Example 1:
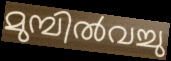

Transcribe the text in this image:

മുമ്പിൽവച്ചു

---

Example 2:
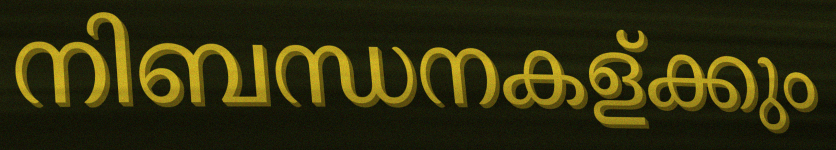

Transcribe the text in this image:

നിബന്ധനകള്ക്കും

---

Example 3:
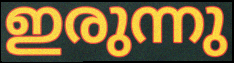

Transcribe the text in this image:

ഇരുന്നു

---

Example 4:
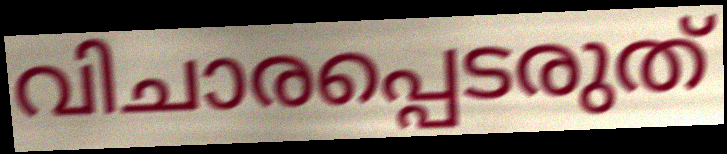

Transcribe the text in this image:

വിചാരപ്പെടരുത്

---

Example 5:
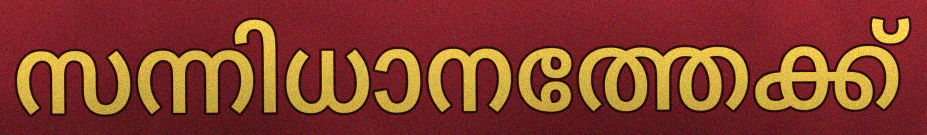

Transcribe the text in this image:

സന്നിധാനത്തേക്ക്